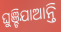
ଘୁଞ୍ଚିଯାଆନ୍ତି